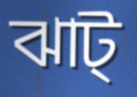
ঝাট্